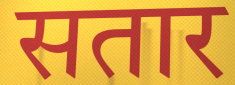
सतार